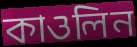
কাওলিন